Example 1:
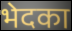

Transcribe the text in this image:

भेदका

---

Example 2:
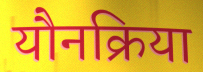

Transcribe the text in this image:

यौनक्रिया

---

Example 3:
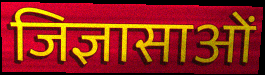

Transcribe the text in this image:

जिज्ञासाओं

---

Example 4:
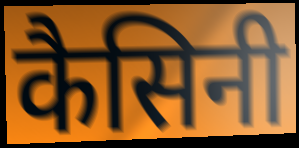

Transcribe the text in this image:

कैसिनी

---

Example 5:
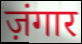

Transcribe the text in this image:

ज़ंगार